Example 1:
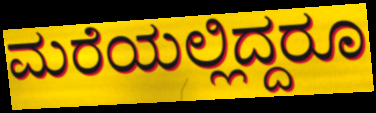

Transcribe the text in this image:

ಮರೆಯಲ್ಲಿದ್ದರೂ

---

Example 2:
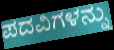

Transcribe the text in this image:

ಪದವಿಗಳನ್ನು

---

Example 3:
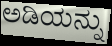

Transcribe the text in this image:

ಅಡಿಯನ್ನು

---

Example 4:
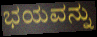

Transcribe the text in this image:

ಭಯವನ್ನು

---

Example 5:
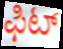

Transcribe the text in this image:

ಫಿಟ್